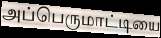
அப்பெருமாட்டியை